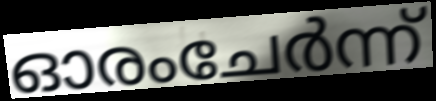
ഓരംചേർന്ന്